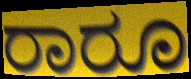
ರಾರೂ